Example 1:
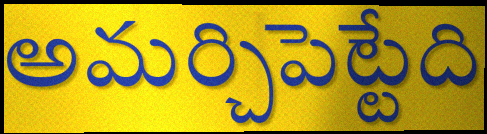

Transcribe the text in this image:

అమర్చిపెట్టేది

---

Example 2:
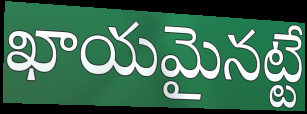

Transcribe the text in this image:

ఖాయమైనట్టే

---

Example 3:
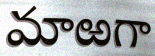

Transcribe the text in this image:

మాఱగా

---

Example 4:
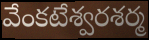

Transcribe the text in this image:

వేంకటేశ్వరశర్మ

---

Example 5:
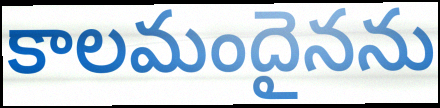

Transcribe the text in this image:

కాలమందైనను